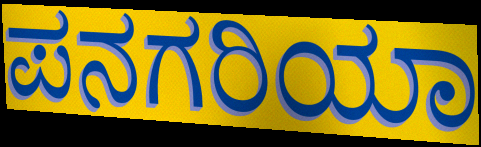
ಪನಗರಿಯಾ